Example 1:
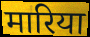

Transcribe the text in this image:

मारिया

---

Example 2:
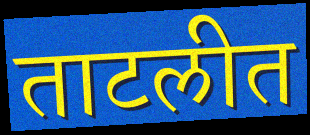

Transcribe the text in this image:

ताटलीत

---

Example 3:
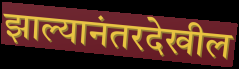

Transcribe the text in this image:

झाल्यानंतरदेखील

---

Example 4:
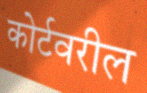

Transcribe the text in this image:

कोर्टवरील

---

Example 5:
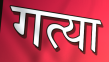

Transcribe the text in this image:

गत्या